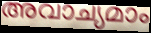
അവാച്യമാം